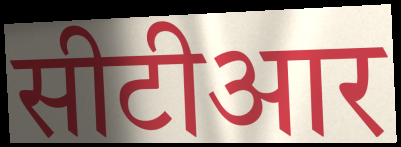
सीटीआर